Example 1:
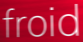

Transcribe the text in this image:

froid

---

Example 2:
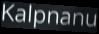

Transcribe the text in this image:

Kalpnanu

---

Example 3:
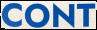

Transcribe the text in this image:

CONT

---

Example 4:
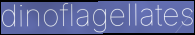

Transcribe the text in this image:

dinoflagellates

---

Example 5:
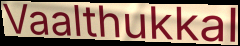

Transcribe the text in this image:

Vaalthukkal